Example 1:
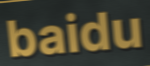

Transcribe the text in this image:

baidu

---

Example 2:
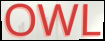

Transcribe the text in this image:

OWL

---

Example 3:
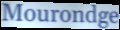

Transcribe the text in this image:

Mourondge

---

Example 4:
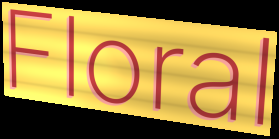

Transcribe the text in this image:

Floral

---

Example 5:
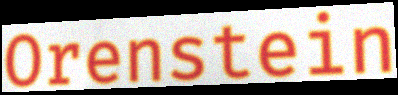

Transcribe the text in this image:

Orenstein